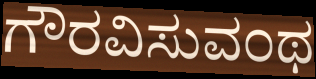
ಗೌರವಿಸುವಂಥ